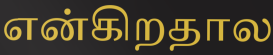
என்கிறதால